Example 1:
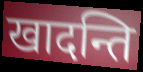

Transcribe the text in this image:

खादन्ति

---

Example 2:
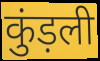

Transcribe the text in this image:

कुंड़ली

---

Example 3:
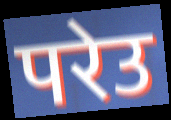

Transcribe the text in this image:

परेउ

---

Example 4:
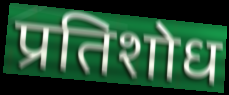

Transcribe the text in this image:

प्रतिशोध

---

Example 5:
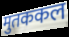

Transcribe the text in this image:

मुतककल